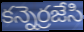
కన్నెర్రజేసి